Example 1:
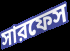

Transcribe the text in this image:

সারফেস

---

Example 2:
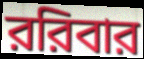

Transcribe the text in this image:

ররিবার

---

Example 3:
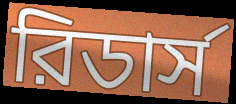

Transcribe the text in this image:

রিডার্স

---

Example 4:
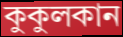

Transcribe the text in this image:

কুকুলকান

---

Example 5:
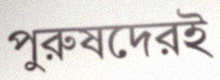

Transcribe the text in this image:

পুরুষদেরই